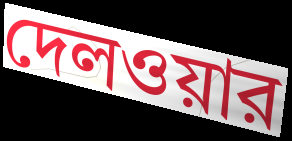
দেলওয়ার